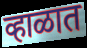
व्हाळात